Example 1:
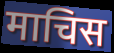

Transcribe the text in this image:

माचिस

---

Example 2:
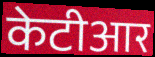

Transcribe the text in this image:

केटीआर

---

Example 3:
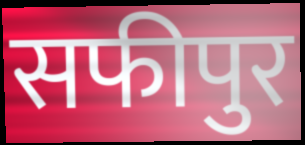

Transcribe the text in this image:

सफीपुर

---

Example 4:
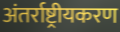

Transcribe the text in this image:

अंतर्राष्ट्रीयकरण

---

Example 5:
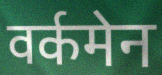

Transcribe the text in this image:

वर्कमेन